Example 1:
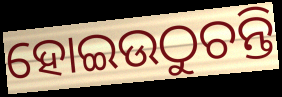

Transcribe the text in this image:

ହୋଇଉଠୁଚନ୍ତି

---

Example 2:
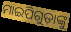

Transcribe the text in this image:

ମାଇପିଗୁଡ଼ାଙ୍କୁ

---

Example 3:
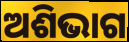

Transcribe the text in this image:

ଅଶିଭାଗ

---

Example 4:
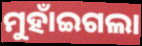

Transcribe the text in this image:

ମୁହାଁଇଗଲା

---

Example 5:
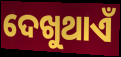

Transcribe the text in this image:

ଦେଖୁଥାଏଁ